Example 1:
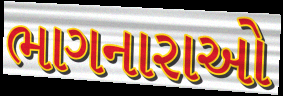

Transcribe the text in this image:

ભાગનારાઓ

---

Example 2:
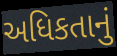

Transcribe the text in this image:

અધિકતાનું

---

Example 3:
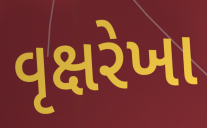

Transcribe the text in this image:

વૃક્ષરેખા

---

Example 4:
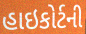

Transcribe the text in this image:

હાઇકોર્ટની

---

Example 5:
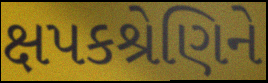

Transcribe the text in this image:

ક્ષપકશ્રેણિને